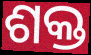
ଶକ୍ତ